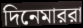
দিনেমাররা